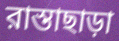
রাস্তাছাড়া